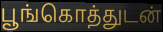
பூங்கொத்துடன்